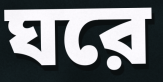
ঘরে